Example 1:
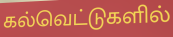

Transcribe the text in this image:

கல்வெட்டுகளில்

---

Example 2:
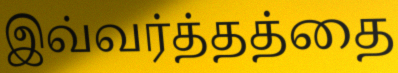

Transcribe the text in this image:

இவ்வர்த்தத்தை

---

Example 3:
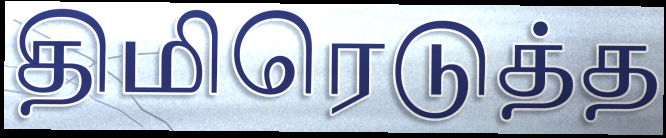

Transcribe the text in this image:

திமிரெடுத்த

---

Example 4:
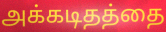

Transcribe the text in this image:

அக்கடிதத்தை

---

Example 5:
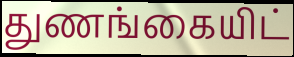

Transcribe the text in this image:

துணங்கையிட்